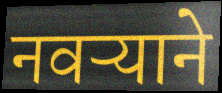
नवऱ्याने